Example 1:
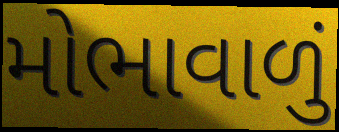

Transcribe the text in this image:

મોભાવાળું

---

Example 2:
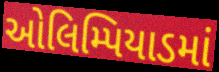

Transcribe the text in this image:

ઓલિમ્પિયાડમાં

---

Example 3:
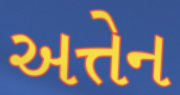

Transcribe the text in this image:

અત્તેન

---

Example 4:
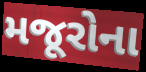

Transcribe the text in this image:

મજૂરોના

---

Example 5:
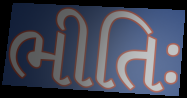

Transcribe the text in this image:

ભીતિઃ